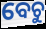
ବେଚୁ